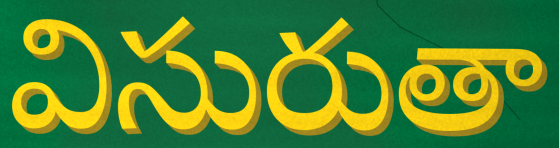
విసురుతా